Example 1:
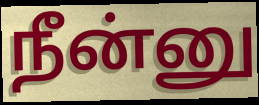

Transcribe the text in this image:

நீன்னு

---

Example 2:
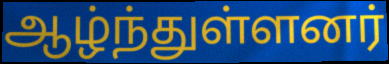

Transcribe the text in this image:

ஆழ்ந்துள்ளனர்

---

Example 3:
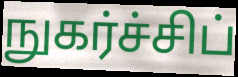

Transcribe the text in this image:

நுகர்ச்சிப்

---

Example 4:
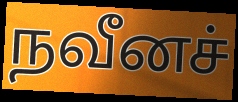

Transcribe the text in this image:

நவீனச்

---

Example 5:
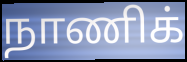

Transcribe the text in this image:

நாணிக்